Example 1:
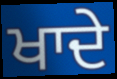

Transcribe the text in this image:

ਖਾਦੇ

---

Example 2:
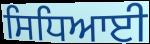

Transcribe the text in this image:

ਸਿਧਿਆਈ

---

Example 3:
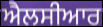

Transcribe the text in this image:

ਐਲਸੀਆਰ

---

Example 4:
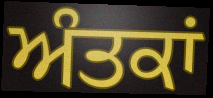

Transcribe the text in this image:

ਅੰਤਕਾਂ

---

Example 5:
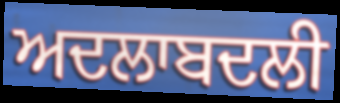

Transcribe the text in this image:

ਅਦਲਾਬਦਲੀ